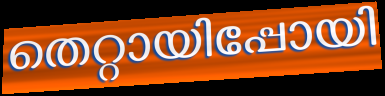
തെറ്റായിപ്പോയി